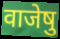
वाजेषु